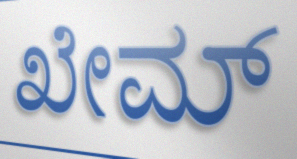
ಖೇಮ್